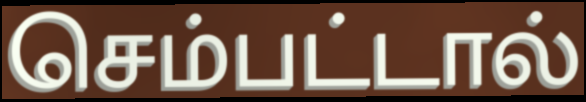
செம்பட்டால்